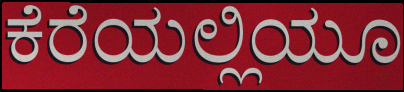
ಕೆರೆಯಲ್ಲಿಯೂ